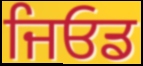
ਜਿਓਡ